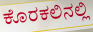
ಕೊರಕಲಿನಲ್ಲಿ